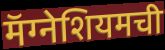
मॅग्नेशियमची